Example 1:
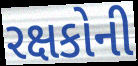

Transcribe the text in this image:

રક્ષકોની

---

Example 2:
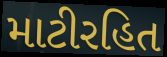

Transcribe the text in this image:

માટીરહિત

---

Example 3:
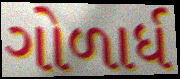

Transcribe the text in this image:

ગોળાર્ધ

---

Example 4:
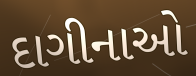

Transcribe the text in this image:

દાગીનાઓ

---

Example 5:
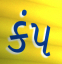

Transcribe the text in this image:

કંપ